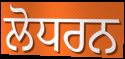
ਲੋਧਰਨ